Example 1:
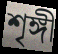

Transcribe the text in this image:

শৃঙ্গী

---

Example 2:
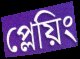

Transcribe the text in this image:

প্লেয়িং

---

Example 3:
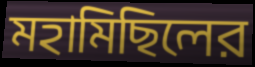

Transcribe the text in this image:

মহামিছিলের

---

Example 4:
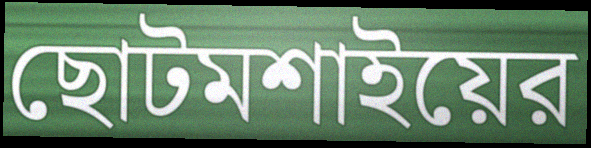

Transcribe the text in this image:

ছোটমশাইয়ের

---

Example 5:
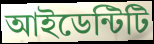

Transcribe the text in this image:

আইডেন্টিটি